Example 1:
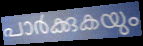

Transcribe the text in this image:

പാർക്കുകയും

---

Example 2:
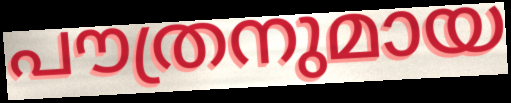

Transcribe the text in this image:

പൗത്രനുമായ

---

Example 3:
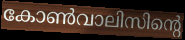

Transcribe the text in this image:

കോൺവാലിസിന്റെ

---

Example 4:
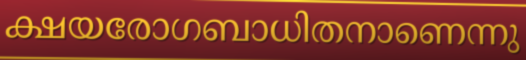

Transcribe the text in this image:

ക്ഷയരോഗബാധിതനാണെന്നു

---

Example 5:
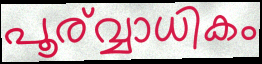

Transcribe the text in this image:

പൂര്വ്വാധികം